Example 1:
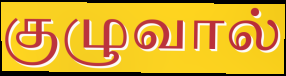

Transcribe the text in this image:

குழுவால்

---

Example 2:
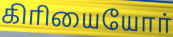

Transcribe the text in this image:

கிரியையோர்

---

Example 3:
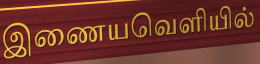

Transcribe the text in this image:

இணையவெளியில்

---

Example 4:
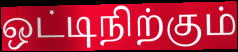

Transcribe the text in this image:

ஒட்டிநிற்கும்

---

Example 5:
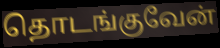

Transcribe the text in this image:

தொடங்குவேன்